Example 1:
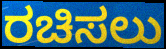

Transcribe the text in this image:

ರಚಿಸಲು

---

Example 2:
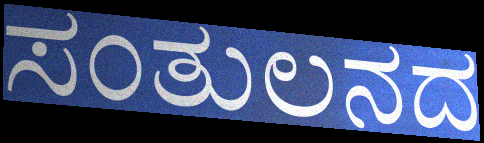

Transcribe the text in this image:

ಸಂತುಲನದ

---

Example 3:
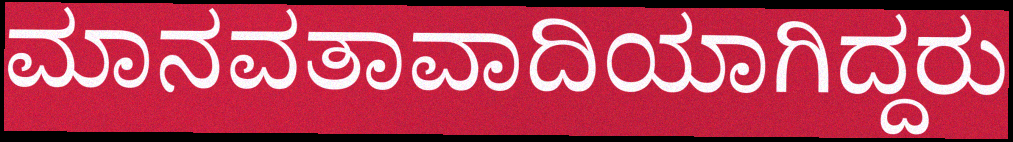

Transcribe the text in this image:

ಮಾನವತಾವಾದಿಯಾಗಿದ್ದರು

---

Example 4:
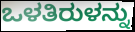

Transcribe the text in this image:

ಒಳತಿರುಳನ್ನು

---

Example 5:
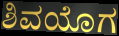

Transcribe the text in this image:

ಶಿವಯೊಗ